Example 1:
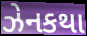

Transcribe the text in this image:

ઝેનકથા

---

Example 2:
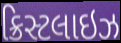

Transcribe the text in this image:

ક્રિસ્ટલાઇઝ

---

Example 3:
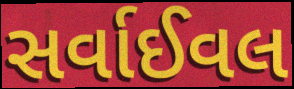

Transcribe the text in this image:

સર્વાઈવલ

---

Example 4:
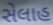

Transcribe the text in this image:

સેલાહ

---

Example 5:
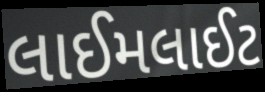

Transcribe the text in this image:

લાઈમલાઈટ